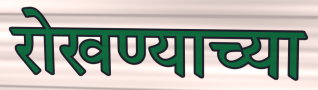
रोखण्याच्या